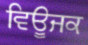
ਵਿਊਜਕ